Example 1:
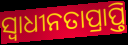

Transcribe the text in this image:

ସ୍ଵାଧୀନତାପ୍ରାପ୍ତି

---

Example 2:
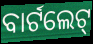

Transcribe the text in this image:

ବାର୍ଟଲେଟ୍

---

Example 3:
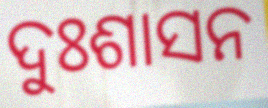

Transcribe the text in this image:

ଦୁଃଶାସନ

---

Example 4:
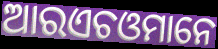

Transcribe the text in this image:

ଆରଏଚଓମାନେ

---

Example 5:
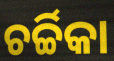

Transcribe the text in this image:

ଚର୍ଚ୍ଚିକା